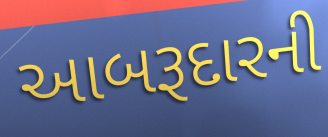
આબરૂદારની